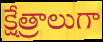
క్షేత్రాలుగా